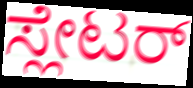
ಸ್ಲೇಟರ್